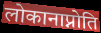
लोकानाप्नोति